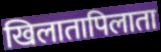
खिलातापिलाता